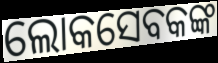
ଲୋକସେବକଙ୍କ